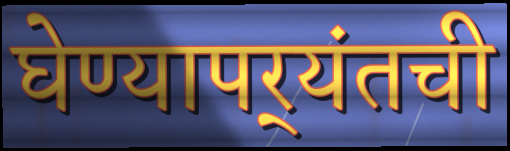
घेण्यापर्यंतची